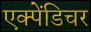
एक्पेंडिचर